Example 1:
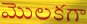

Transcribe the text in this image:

మొలకగా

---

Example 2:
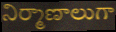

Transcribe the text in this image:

నిర్మాణాలుగా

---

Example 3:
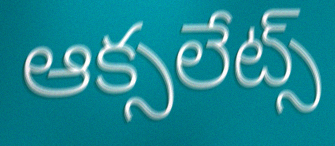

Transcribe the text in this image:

ఆక్సలేట్స్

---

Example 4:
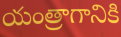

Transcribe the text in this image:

యంత్రాగానికి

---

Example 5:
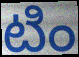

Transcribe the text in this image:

టిం